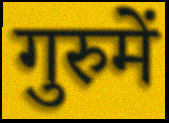
गुरुमें